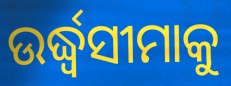
ଉର୍ଦ୍ଧ୍ୱସୀମାକୁ